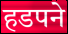
हडपने